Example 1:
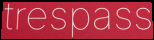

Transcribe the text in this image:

trespass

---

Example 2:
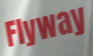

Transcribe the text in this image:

Flyway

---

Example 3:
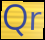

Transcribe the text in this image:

Qr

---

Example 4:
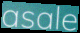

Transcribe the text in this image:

asale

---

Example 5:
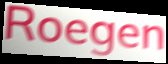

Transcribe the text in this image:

Roegen